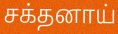
சக்தனாய்